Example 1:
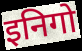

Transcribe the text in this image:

इनिगो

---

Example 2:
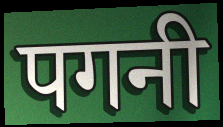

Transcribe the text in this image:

पगनी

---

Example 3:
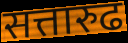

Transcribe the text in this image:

सत्तारुढ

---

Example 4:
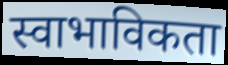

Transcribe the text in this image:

स्वाभाविकता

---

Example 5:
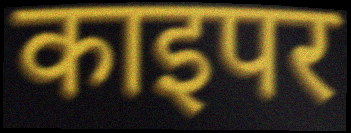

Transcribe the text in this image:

काइपर